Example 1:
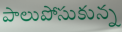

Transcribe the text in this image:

పాలుపోసుకున్న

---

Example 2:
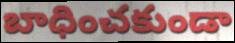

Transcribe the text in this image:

బాధించకుండా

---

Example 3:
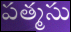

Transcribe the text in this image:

పత్మసు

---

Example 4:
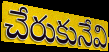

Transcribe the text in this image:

చేరుకునేవి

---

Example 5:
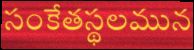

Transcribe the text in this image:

సంకేతస్థలమున